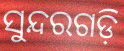
ସୁନ୍ଦରଗଡ଼ି